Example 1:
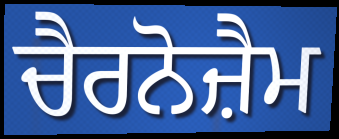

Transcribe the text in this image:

ਚੈਰਨੋਜ਼ੈਮ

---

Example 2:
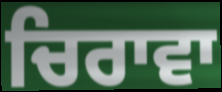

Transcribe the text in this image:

ਚਿਰਾਵਾ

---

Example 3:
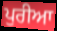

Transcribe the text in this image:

ਪੁਰੀਆ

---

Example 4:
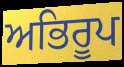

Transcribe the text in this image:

ਅਭਿਰੂਪ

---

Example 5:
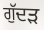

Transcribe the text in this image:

ਗੁੱਦੜ